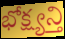
భోక్ష్యన్తి